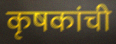
कृषकांची